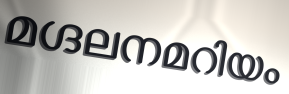
മഗ്ദലനമറിയം